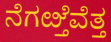
ನೆಗೞ್ತೆವೆತ್ತ